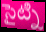
సైట్ని